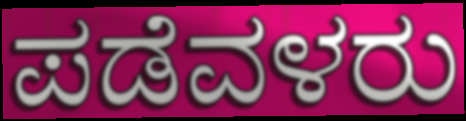
ಪಡೆವಳರು